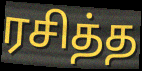
ரசித்த